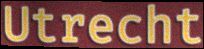
Utrecht